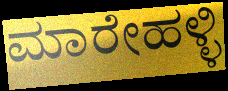
ಮಾರೇಹಳ್ಳಿ